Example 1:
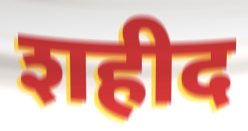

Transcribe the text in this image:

शहीद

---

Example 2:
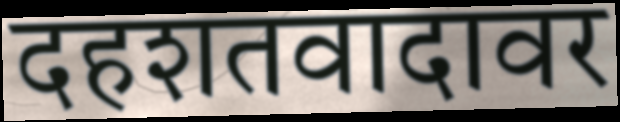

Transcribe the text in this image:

दहशतवादावर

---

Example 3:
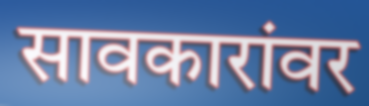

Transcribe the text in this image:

सावकारांवर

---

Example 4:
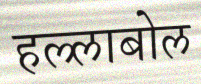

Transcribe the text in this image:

हल्लाबोल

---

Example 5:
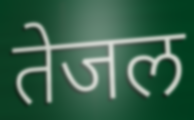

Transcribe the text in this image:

तेजल